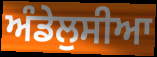
ਅੰਡੇਲੁਸੀਆ